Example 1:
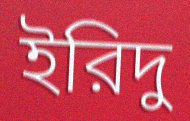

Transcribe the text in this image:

ইরিদু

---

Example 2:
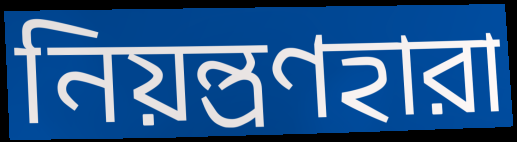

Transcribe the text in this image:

নিয়ন্ত্রণহারা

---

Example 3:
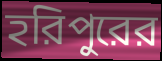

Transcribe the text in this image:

হরিপুরের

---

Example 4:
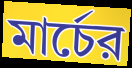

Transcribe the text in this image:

মার্চের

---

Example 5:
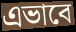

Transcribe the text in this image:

এভাবে